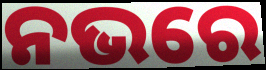
ନଭରେ